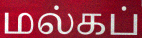
மல்கப்